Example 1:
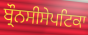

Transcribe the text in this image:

ਬ੍ਰੌਨਸੀਸੇਪਟਿਕਾ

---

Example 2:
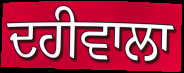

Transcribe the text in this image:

ਦਹੀਵਾਲਾ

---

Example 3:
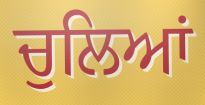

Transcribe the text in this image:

ਚੁਲਿਆਂ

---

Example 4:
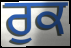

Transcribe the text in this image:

ਰੁਕ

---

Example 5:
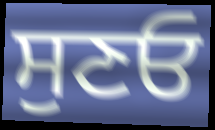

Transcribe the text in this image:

ਸੁਣਓ